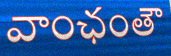
వాంఛంతౌ